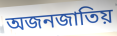
অজনজাতিয়